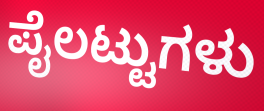
ಪೈಲಟ್ಟುಗಳು